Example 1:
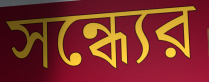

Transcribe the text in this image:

সন্ধ্যের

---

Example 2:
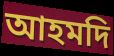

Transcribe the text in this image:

আহমদি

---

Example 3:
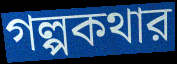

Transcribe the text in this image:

গল্পকথার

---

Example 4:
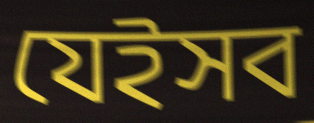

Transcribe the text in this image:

যেইসব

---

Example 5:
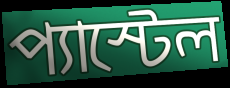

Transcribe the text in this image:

প্যাস্টেল